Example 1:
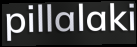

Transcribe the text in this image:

pillalaki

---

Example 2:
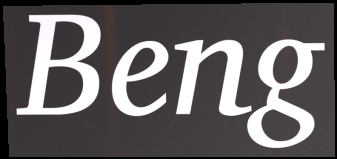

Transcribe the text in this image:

Beng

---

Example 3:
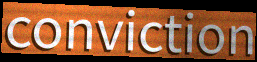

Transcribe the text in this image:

conviction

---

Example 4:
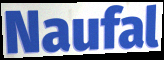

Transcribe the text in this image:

Naufal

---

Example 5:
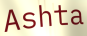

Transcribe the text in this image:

Ashta